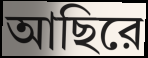
আছিরে